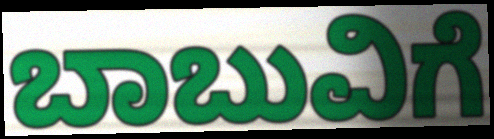
ಬಾಬುವಿಗೆ